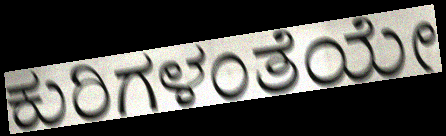
ಕುರಿಗಳಂತೆಯೇ